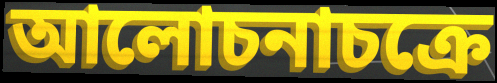
আলোচনাচক্রে